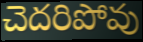
చెదరిపోవు